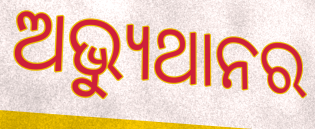
ଅଭ୍ୟୁଥାନର